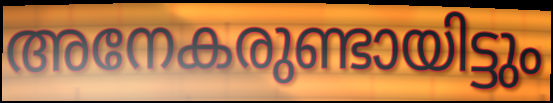
അനേകരുണ്ടായിട്ടും